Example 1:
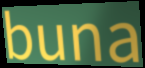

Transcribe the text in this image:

buna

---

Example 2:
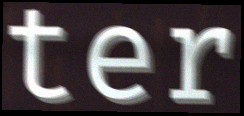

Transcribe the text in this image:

ter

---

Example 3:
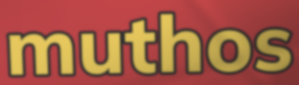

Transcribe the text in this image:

muthos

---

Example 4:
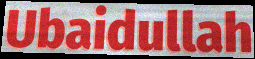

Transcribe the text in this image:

Ubaidullah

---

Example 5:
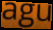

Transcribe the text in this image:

agu